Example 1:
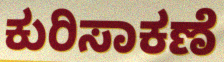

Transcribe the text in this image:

ಕುರಿಸಾಕಣೆ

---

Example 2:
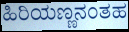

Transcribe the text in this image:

ಹಿರಿಯಣ್ಣನಂತಹ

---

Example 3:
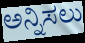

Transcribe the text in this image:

ಅನ್ನಿಸಲು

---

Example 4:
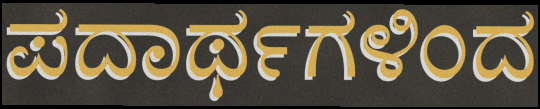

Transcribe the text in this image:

ಪದಾರ್ಥಗಳಿಂದ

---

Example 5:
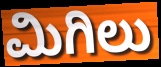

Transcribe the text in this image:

ಮಿಗಿಲು